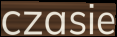
czasie